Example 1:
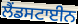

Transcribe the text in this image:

ਲੈਂਡਸਟਾਈਨ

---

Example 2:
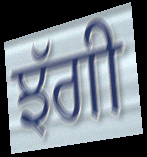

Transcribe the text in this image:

ਝੱਗੀ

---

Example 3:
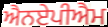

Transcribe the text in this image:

ਐਨਏਪੀਐਮ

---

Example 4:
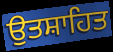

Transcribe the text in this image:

ਉੁਤਸ਼ਾਹਿਤ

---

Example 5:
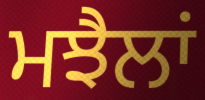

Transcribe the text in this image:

ਮਝੈਲਾਂ